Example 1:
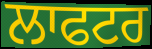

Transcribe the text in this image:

ਲਾਫਟਰ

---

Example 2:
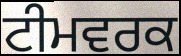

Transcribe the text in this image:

ਟੀਮਵਰਕ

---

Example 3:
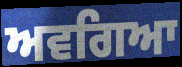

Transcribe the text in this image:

ਅਵਗਿਆ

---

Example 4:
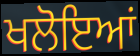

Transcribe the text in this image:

ਖਲੋਇਆਂ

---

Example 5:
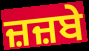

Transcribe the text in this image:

ਜ਼ਜ਼ਬੇ